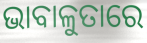
ଭାବାଳୁତାରେ